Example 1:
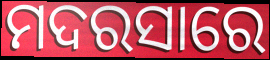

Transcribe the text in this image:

ମଦରସାରେ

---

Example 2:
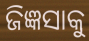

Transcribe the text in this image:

ଜିଜ୍ଞସାକୁ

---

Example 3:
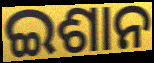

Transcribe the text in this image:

ଇଶାନ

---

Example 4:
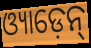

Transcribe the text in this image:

ଓ୍ୟାଡ଼େନ୍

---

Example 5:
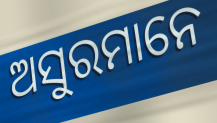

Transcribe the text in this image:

ଅସୁରମାନେ